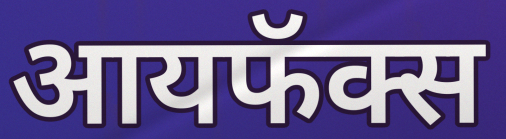
आयफॅक्स